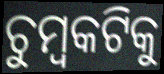
ଚୁମ୍ବକଟିକୁ